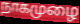
நாகமுழை